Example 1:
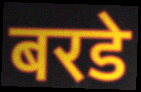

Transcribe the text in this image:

बरडे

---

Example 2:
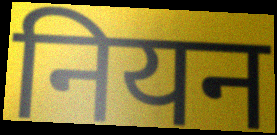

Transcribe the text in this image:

नियन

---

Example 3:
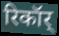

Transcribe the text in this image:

रिकॉर्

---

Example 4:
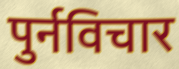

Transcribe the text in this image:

पुर्नविचार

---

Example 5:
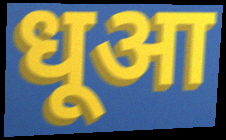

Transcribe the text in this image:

धूआ